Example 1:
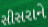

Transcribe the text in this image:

સીસરાને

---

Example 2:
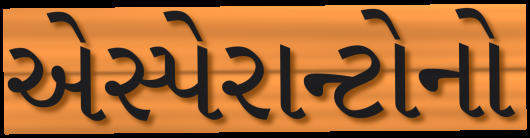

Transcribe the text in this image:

એસ્પેરાન્ટોનો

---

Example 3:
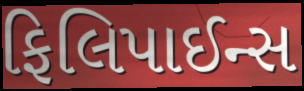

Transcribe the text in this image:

ફિલિપાઈન્સ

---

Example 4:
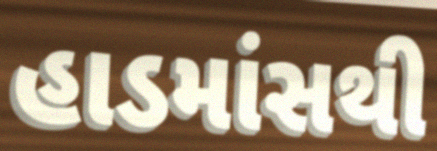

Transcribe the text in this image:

હાડમાંસથી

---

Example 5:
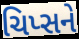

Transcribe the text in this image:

ચિપ્સને